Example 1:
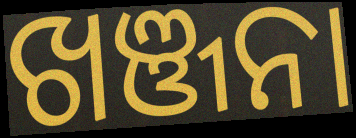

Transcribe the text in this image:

ଖଞ୍ଜନା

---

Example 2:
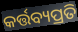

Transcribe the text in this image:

କର୍ତ୍ତବ୍ୟପ୍ରତି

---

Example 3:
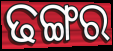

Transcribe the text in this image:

ଢଙ୍ଗର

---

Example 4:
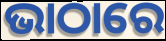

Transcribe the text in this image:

ଭାଠାରେ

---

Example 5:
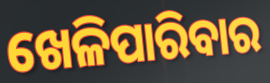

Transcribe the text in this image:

ଖେଳିପାରିବାର